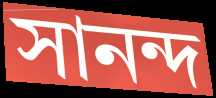
সানন্দ